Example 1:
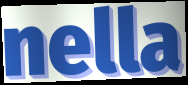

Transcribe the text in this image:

nella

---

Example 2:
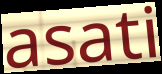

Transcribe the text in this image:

asati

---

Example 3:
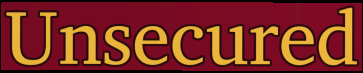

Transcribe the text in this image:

Unsecured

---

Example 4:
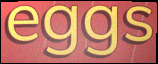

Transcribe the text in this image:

eggs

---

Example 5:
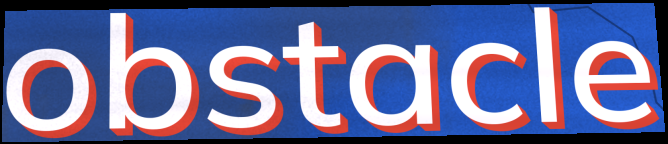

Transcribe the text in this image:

obstacle